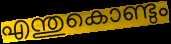
എന്തുകൊണ്ടും